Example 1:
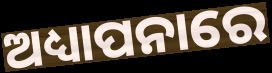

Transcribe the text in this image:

ଅଧ୍ୟାପନାରେ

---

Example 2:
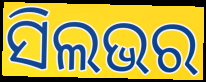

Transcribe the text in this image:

ସିଲଭର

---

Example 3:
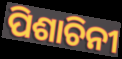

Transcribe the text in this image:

ପିଶାଚିନୀ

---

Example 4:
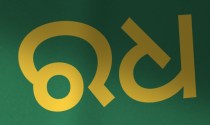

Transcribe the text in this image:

ରଧ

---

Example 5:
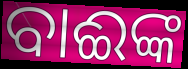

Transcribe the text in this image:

ବାଈଙ୍କ